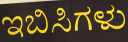
ಇಬಿಸಿಗಳು